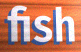
fish